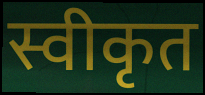
स्वीकृत